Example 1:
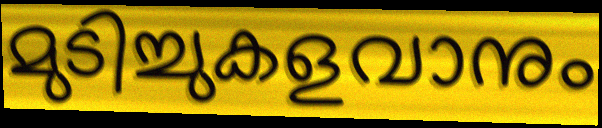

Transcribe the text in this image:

മുടിച്ചുകളവാനും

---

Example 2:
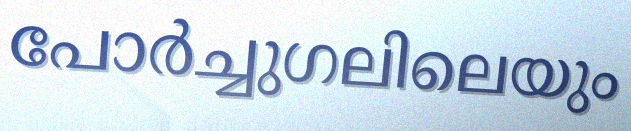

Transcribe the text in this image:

പോർച്ചുഗലിലെയും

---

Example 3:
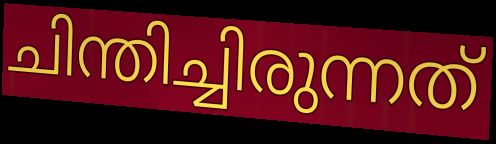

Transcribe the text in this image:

ചിന്തിച്ചിരുന്നത്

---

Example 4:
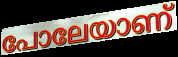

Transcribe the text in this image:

പോലേയാണ്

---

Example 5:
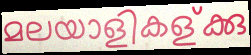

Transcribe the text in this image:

മലയാളികള്ക്കു